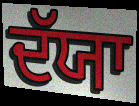
ਦੱਯਾ